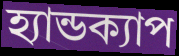
হ্যান্ডক্যাপ